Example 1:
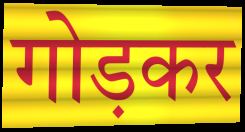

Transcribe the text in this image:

गोड़कर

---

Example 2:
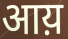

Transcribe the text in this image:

आय़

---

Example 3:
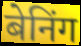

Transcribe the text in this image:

बेनिंग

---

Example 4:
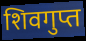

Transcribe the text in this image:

शिवगुप्त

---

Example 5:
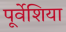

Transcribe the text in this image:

पूर्वेशिया